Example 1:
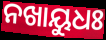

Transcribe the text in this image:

ନଖାୟୁଧଃ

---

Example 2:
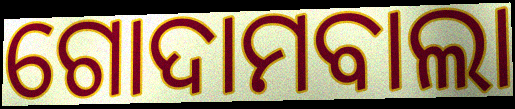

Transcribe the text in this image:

ଗୋଦାମବାଲା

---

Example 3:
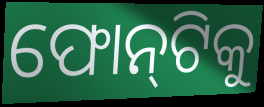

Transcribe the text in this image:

ଫୋନ୍‌ଟିକୁ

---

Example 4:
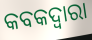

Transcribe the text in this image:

କବକଦ୍ୱାରା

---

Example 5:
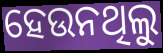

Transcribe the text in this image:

ହେଉନଥିଲୁ